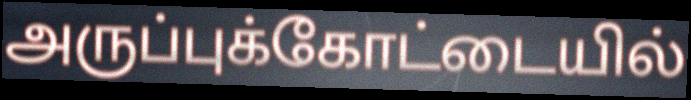
அருப்புக்கோட்டையில்